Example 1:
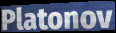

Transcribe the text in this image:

Platonov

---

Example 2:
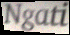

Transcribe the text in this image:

Ngati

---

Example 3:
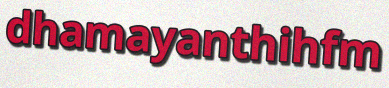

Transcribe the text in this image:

dhamayanthihfm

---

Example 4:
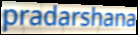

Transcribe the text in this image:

pradarshana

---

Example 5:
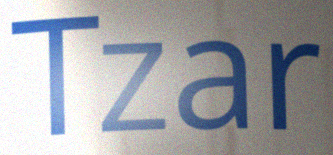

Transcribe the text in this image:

Tzar